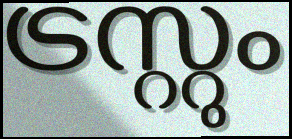
ട്രസ്റ്റും